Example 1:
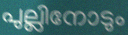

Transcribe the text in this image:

പുല്ലിനോടും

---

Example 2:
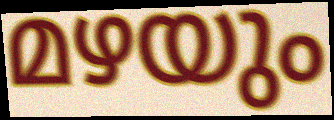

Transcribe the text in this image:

മഴയും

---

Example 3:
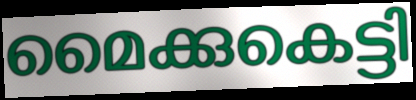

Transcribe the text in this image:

മൈക്കുകെട്ടി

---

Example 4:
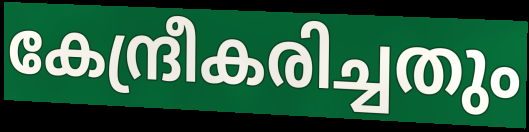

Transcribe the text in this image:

കേന്ദ്രീകരിച്ചതും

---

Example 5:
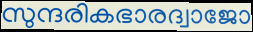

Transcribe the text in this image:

സുന്ദരികഭാരദ്വാജോ